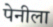
पेनीला